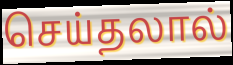
செய்தலால்